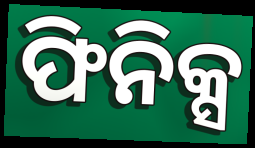
ଫିନିକ୍ସ